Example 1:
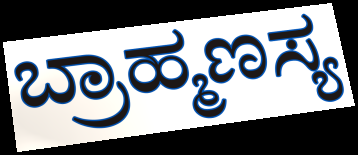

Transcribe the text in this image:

ಬ್ರಾಹ್ಮಣಸ್ಯ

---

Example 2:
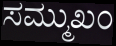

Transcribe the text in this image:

ಸಮ್ಮುಖಂ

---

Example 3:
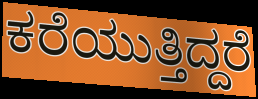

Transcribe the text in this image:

ಕರೆಯುತ್ತಿದ್ದರೆ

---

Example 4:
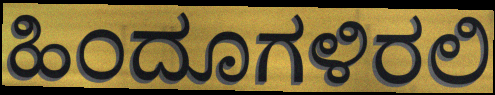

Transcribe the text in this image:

ಹಿಂದೂಗಳಿರಲಿ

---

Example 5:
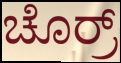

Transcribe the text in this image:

ಚೊರ್ರ್